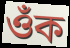
ওঁক